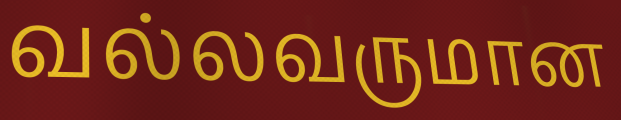
வல்லவருமான